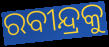
ରବୀନ୍ଦ୍ରକୁ